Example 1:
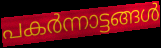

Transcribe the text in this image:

പകർന്നാട്ടങ്ങൾ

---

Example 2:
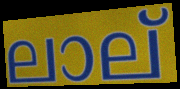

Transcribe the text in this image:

ലാല്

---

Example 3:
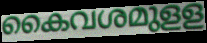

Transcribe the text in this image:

കൈവശമുളള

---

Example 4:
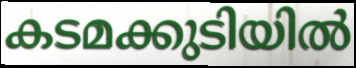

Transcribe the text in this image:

കടമക്കുടിയിൽ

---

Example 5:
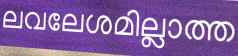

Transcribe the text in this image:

ലവലേശമില്ലാത്ത